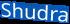
Shudra